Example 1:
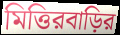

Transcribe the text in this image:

মিত্তিরবাড়ির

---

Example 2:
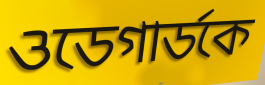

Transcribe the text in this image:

ওডেগার্ডকে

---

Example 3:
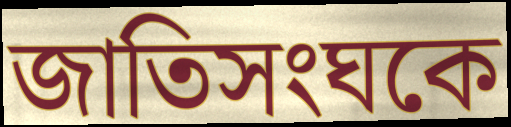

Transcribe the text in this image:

জাতিসংঘকে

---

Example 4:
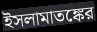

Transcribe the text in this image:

ইসলামাতঙ্কের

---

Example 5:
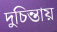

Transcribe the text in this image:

দুচিন্তায়